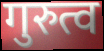
गुरुत्व